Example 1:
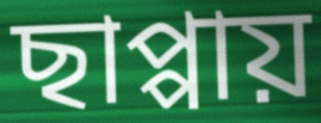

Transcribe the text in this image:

ছাপ্পায়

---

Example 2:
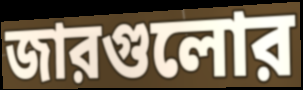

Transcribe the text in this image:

জারগুলোর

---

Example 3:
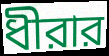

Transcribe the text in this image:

ধীরার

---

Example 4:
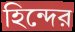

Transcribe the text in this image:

হিন্দের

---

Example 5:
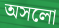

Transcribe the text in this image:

অসলো